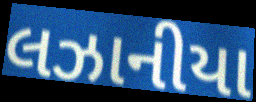
લઝાનીયા